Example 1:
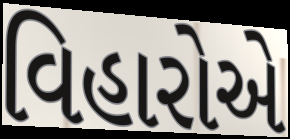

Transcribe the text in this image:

વિહારોએ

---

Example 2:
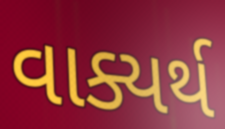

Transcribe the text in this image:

વાક્યર્થ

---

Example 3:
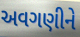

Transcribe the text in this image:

અવગણીને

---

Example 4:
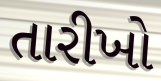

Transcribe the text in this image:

તારીખો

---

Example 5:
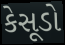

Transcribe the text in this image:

કેસૂડો